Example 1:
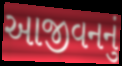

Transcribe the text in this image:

આજીવનનું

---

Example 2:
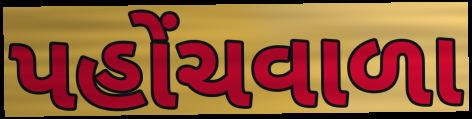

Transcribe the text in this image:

પહોંચવાળા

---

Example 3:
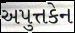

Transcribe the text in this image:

અપુત્તકેન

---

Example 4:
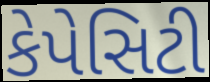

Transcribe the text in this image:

કેપેસિટી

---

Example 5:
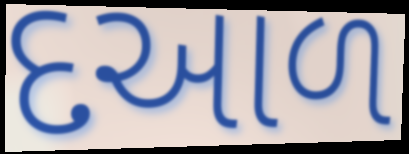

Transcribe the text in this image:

દઆળ